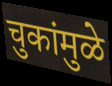
चुकांमुळे